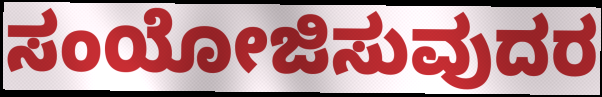
ಸಂಯೋಜಿಸುವುದರ